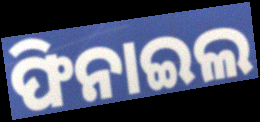
ଫିନାଇଲ